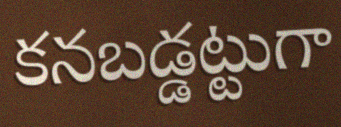
కనబడ్డట్టుగా